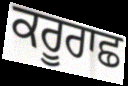
ਕਰੂਰਾਛ